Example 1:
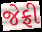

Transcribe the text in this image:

જેફ્રી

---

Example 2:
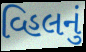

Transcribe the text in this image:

વ્હિલનું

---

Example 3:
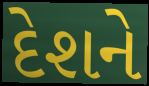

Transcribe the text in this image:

દેશને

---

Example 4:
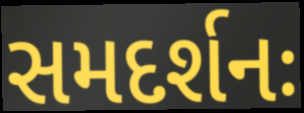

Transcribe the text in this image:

સમદર્શનઃ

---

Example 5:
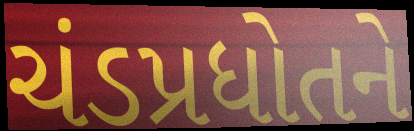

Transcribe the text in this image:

ચંડપ્રધોતને